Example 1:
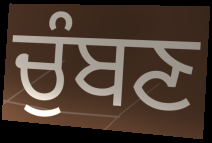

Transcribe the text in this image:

ਚੁੰਬਣ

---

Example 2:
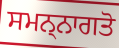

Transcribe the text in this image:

ਸਮਨ੍ਨਾਗਤੋ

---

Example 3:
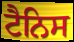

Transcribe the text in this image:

ਟੈਨਿਸ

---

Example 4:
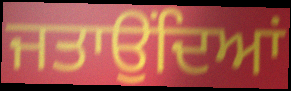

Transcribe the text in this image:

ਜਤਾਉੰਦਿਆਂ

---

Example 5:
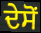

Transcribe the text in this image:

ਦੇਸੋਂ